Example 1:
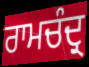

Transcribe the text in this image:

ਰਾਮਚੰਦ੍ਰ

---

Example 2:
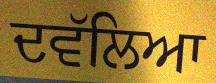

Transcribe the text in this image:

ਦਵੱਲਿਆ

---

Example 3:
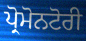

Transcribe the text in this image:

ਪ੍ਰੋਮੋਨਟੋਰੀ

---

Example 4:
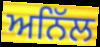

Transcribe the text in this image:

ਅਨਿੱਲ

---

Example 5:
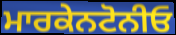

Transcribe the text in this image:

ਮਾਰਕੇਨਟੋਨੀਓ